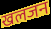
खलजन